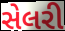
સેલરી